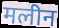
मलीन